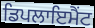
ਡਿਪਲਾਇਮੈਂਟ